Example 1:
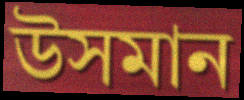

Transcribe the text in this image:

উসমান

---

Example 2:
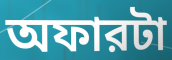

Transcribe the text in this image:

অফারটা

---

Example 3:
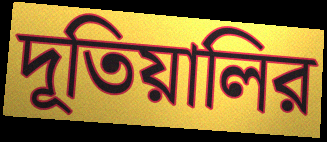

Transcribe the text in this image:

দূতিয়ালির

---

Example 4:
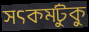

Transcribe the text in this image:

সৎকর্মটুকু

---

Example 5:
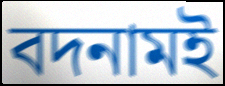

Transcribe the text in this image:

বদনামই